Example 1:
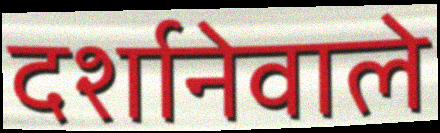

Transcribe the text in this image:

दर्शानेवाले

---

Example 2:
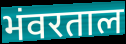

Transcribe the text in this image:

भंवरताल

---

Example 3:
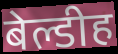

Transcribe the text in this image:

बेल्डीह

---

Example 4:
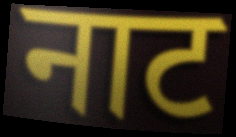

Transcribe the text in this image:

नाट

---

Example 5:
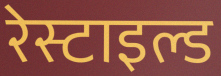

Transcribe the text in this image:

रेस्टाइल्ड